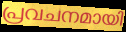
പ്രവചനമായി